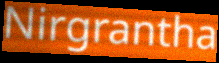
Nirgrantha